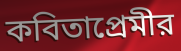
কবিতাপ্রেমীর